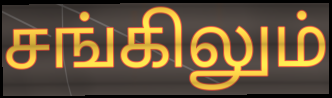
சங்கிலும்